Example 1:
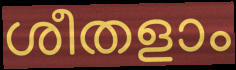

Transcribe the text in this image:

ശീതളാം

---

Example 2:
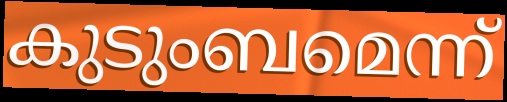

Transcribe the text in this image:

കുടുംബമെന്ന്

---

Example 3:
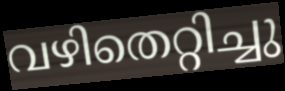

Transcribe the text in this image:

വഴിതെറ്റിച്ചു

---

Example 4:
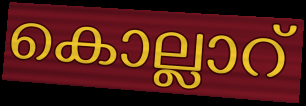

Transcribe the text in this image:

കൊല്ലാറ്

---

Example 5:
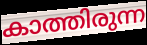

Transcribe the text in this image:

കാത്തിരുന്ന